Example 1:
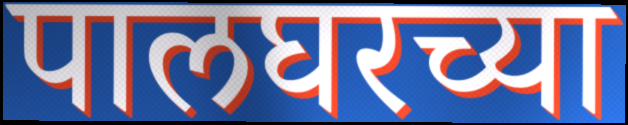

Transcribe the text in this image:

पालघरच्या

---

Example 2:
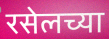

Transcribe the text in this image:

रसेलच्या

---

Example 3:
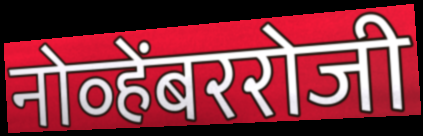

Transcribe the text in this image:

नोव्हेंबररोजी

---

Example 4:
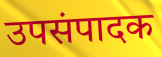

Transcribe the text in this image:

उपसंपादक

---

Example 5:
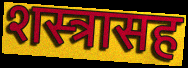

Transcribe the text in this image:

शस्त्रासह